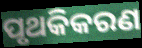
ପୃଥକିକରଣ